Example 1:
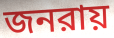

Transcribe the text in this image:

জনরায়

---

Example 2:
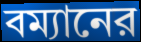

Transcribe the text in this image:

বম্যানের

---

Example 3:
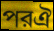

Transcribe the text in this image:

পরঐ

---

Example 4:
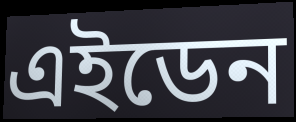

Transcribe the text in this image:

এইডেন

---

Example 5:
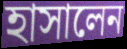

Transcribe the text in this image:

হাসালেন